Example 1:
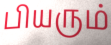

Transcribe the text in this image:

பியரும்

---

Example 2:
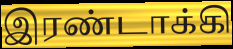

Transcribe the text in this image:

இரண்டாக்கி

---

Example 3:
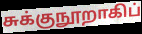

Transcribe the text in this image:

சுக்குநூறாகிப்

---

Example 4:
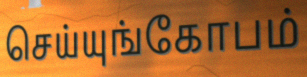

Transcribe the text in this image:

செய்யுங்கோபம்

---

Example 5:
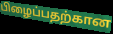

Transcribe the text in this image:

பிழைப்பதற்கான